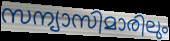
സന്യാസിമാരിലും